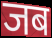
जब